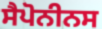
ਸੈਪੋਨੀਨਸ